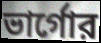
ভার্গোর